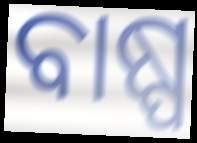
ବାଷ୍ପ